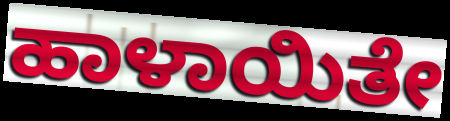
ಹಾಳಾಯಿತೇ